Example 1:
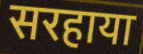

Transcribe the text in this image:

सरहाया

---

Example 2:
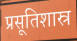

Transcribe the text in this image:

प्रसूतिशास्र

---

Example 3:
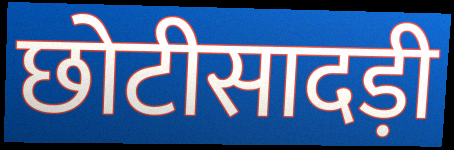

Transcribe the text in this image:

छोटीसादड़ी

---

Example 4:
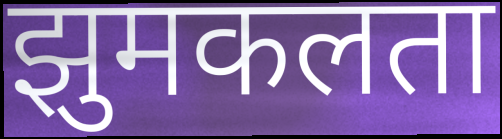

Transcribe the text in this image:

झुमकलता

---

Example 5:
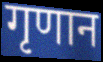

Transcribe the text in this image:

गृणान